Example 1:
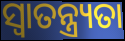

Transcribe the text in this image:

ସ୍ୱାତନ୍ତ୍ର୍ୟତା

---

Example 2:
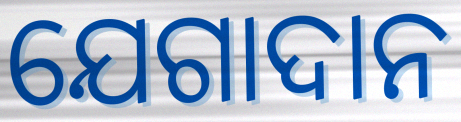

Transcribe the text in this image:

ଯେଗାଦାନ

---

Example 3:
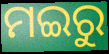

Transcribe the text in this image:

ମଇରୁ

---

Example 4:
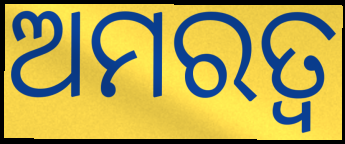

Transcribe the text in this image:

ଅମରତ୍ଵ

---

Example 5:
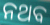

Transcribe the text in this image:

ନଥବ